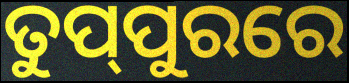
ତୁପ୍‌ପୁରରେ